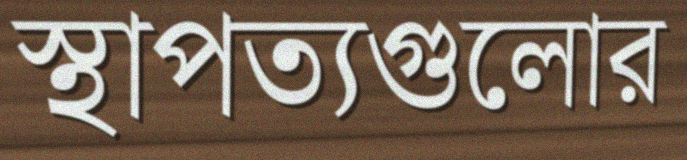
স্থাপত্যগুলোর